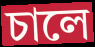
চালে